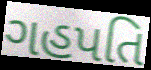
ગહપતિ